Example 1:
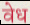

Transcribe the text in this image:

वेध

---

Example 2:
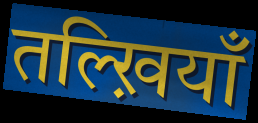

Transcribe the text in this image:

तल्ख़ियाँ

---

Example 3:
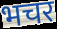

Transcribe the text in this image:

भचर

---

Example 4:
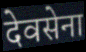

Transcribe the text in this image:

देवसेना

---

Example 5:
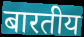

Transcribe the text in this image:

बारतीय